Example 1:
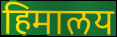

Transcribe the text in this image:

हिमालय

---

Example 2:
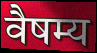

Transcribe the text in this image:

वैषम्य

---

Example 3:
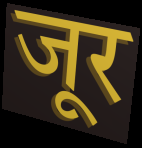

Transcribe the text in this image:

जूर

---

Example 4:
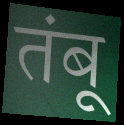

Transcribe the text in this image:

तंबू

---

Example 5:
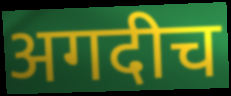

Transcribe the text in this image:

अगदीच